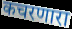
कचरणारा